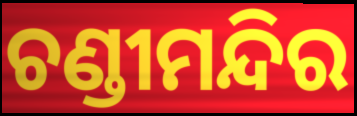
ଚଣ୍ଡୀମନ୍ଦିର